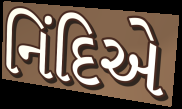
નિંદિએ